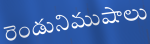
రెండునిముషాలు